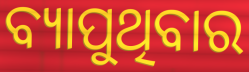
ବ୍ୟାପୁଥିବାର